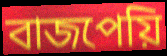
বাজপেয়ি